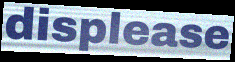
displease